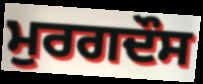
ਮੁਰਗਦੌਸ